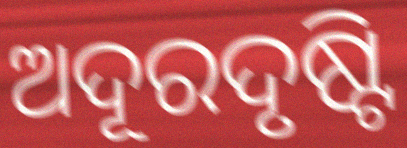
ଅଦୂରଦୃଷ୍ଟି